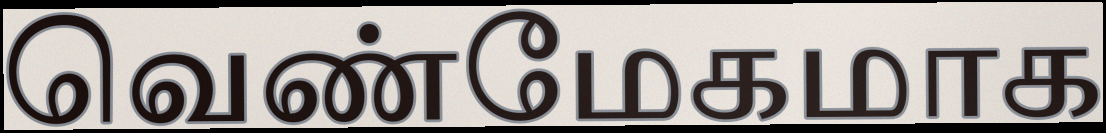
வெண்மேகமாக